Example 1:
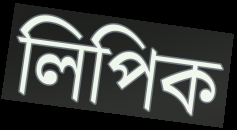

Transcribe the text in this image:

লিপিক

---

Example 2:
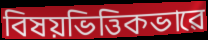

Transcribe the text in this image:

বিষয়ভিত্তিকভাৱে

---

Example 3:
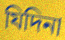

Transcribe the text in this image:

যিদিনা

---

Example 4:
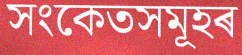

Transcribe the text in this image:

সংকেতসমূহৰ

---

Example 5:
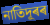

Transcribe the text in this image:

নাতিদূৰৰ